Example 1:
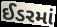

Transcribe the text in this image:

ઈડરમાં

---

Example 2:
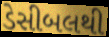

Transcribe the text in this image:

ડેસીબલથી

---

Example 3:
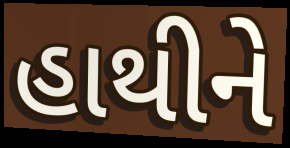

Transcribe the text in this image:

હાથીને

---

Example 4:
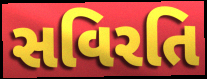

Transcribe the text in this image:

સવિરતિ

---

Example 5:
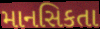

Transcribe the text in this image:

માનસિકતા